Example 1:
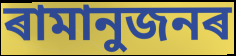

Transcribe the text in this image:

ৰামানুজনৰ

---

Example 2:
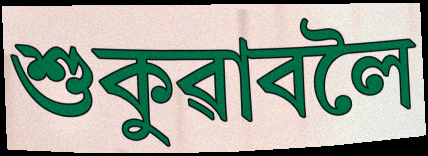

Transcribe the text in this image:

শুকুৱাবলৈ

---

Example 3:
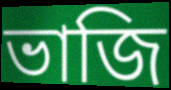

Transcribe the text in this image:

ভাজি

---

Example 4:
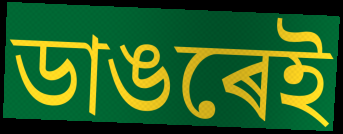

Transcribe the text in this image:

ডাঙৰেই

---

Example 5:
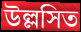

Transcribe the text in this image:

উল্লসিত